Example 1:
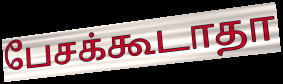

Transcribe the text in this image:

பேசக்கூடாதா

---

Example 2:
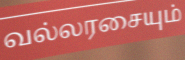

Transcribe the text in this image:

வல்லரசையும்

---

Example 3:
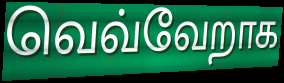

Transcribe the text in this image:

வெவ்வேறாக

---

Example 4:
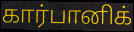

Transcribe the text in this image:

கார்பானிக்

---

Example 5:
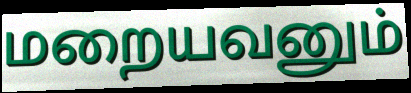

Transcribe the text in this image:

மறையவனும்